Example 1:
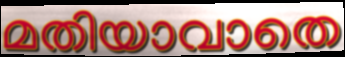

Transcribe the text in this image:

മതിയാവാതെ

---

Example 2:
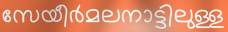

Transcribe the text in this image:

സേയീർമലനാട്ടിലുള്ള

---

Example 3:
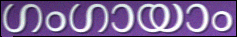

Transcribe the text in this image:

ഗംഗായാം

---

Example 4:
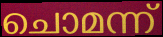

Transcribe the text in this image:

ചൊമന്ന്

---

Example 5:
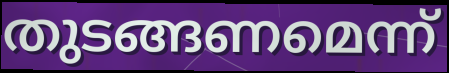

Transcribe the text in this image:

തുടങ്ങണമെന്ന്